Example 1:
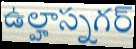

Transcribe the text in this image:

ఉల్హాస్నగర్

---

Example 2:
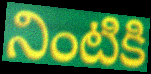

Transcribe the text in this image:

నింటికి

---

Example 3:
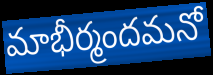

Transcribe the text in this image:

మాభీర్మందమనో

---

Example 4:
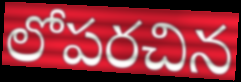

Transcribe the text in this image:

లోపరచిన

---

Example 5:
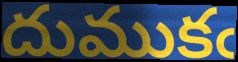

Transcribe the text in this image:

దుముకఁ